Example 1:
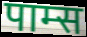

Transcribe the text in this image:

पाम्स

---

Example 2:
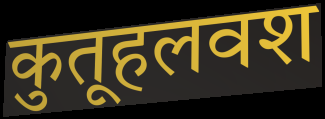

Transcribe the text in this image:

कुतूहलवश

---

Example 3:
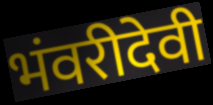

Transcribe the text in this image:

भंवरीदेवी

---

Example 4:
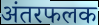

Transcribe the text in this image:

अंतरफलक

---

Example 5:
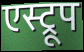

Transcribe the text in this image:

एस्ट्रूप